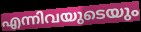
എന്നിവയുടെയും